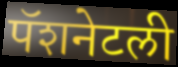
पॅशनेटली